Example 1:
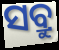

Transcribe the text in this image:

ସବ୍ରୁ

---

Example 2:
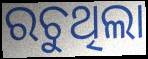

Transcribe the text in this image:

ରଚୁଥିଲା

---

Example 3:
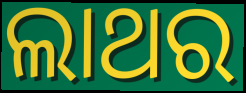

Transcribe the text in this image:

ଲାଥର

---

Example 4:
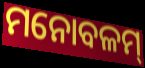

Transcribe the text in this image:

ମନୋବଳମ୍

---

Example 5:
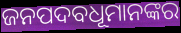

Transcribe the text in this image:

ଜନପଦବଧୂମାନଙ୍କର